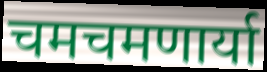
चमचमणार्या